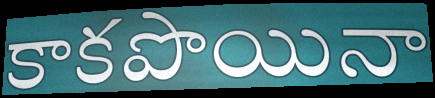
కాకపొయినా